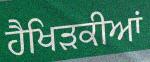
ਹੈਖਿੜਕੀਆਂ